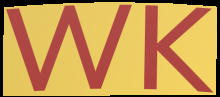
WK